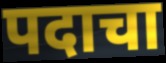
पदाचा